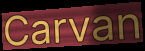
Carvan